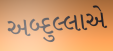
અબ્દુલ્લાએ